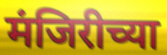
मंजिरीच्या